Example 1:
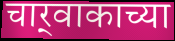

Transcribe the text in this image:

चार्वाकाच्या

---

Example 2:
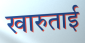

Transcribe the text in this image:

खारुताई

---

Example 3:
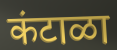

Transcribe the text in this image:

कंटाळा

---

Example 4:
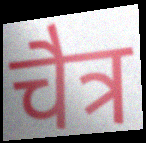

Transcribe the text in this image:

चैत्र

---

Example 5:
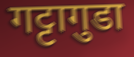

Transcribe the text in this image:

गट्टागुडा